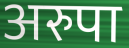
अरुपा